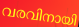
വരവിനായി